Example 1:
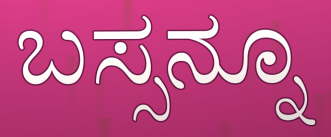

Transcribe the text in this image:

ಬಸ್ಸನ್ನೂ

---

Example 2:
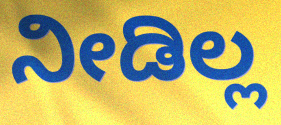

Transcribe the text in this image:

ನೀಡಿಲ್ಲ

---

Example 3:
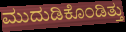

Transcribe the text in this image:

ಮುದುಡಿಕೊಂಡಿತ್ತು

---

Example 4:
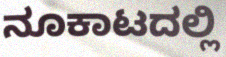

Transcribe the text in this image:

ನೂಕಾಟದಲ್ಲಿ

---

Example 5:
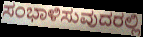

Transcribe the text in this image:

ಸಂಭಾಳಿಸುವುದರಲ್ಲಿ